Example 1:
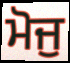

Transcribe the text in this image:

ਮੋਜੁ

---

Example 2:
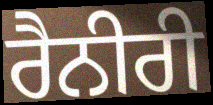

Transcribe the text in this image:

ਰੈਨੀਰੀ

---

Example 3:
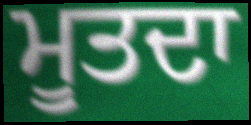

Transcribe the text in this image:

ਮੂਤਦਾ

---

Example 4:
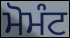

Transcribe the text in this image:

ਮੋਮੰਟ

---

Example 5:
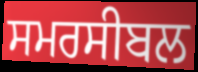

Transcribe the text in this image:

ਸਮਰਸੀਬਲ